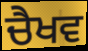
ਚੈਖਵ